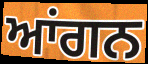
ਆਂਗਨ